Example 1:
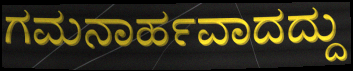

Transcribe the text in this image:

ಗಮನಾರ್ಹವಾದದ್ದು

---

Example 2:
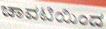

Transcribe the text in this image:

ಚಾವಟಿಯಿಂದ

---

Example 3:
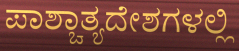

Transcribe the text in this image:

ಪಾಶ್ಚಾತ್ಯದೇಶಗಳಲ್ಲಿ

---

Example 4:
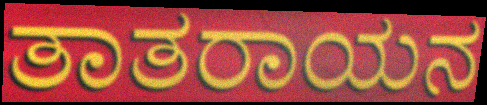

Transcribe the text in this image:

ತಾತರಾಯನ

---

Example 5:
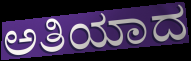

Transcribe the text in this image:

ಅತಿಯಾದ